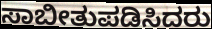
ಸಾಬೀತುಪಡಿಸಿದರು